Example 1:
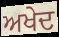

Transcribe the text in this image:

ਅਖੇਦ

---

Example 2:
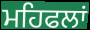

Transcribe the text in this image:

ਮਹਿਫਲਾਂ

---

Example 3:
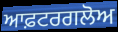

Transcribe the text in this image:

ਆਫ਼ਟਰਗਲੋਅ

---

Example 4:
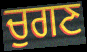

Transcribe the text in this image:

ਚੁਗਣ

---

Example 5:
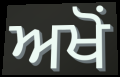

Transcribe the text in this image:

ਅਖੋਂ